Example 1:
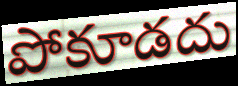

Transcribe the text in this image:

పోకూడదు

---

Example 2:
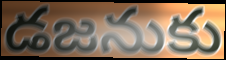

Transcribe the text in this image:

డజనుకు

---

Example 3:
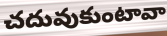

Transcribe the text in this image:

చదువుకుంటావా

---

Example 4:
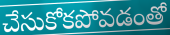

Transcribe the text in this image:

చేసుకోకపోవడంతో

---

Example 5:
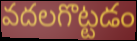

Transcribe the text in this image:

వదలగొట్టడం